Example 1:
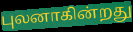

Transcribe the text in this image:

புலனாகின்றது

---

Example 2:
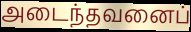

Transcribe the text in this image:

அடைந்தவனைப்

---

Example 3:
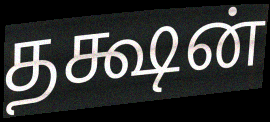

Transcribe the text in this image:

தக்ஷன்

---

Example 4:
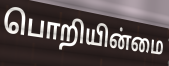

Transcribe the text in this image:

பொறியின்மை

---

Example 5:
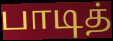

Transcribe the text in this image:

பாடித்